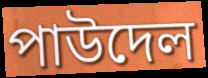
পাউদেল